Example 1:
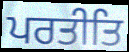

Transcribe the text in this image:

ਪਰਤੀਤਿ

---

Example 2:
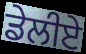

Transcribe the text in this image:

ਡੇਲੀਏ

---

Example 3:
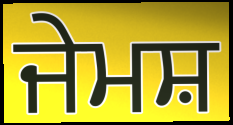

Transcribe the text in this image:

ਜੇਮਸ਼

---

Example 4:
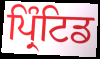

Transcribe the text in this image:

ਪ੍ਰਿੰਟਿਡ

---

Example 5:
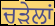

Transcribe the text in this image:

ਚੜੇਲਾਂ